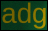
adg